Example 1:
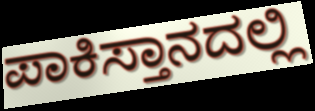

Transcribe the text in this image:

ಪಾಕಿಸ್ತಾನದಲ್ಲಿ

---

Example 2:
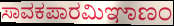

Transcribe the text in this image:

ಸಾವಕಪಾರಮಿಞಾಣಂ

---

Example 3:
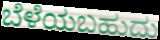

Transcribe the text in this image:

ಬೆಳೆಯಬಹುದು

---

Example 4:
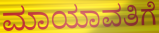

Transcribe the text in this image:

ಮಾಯಾವತಿಗೆ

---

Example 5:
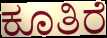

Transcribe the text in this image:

ಕೂತಿರೆ